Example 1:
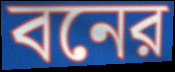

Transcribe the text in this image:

বনের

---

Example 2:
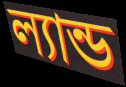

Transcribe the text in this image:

ল্যান্ড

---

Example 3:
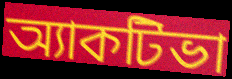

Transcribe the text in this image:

অ্যাকটিভা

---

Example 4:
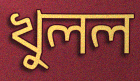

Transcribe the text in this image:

খুলল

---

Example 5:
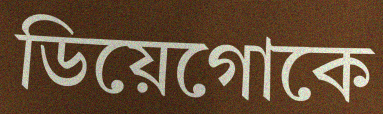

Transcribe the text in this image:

ডিয়েগোকে